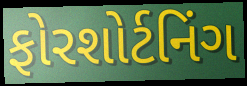
ફોરશોર્ટનિંગ